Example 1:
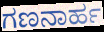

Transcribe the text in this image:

ಗಣನಾರ್ಹ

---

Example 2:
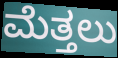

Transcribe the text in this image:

ಮೆತ್ತಲು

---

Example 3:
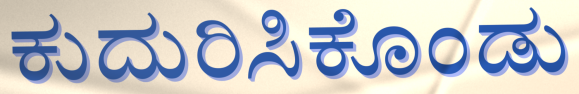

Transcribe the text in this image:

ಕುದುರಿಸಿಕೊಂಡು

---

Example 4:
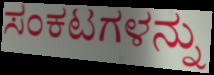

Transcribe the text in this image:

ಸಂಕಟಗಳನ್ನು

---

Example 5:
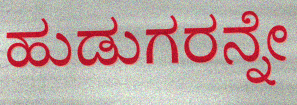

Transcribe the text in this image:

ಹುಡುಗರನ್ನೇ